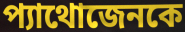
প্যাথোজেনকে